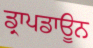
ਡ੍ਰਾਪਡਾਊਨ